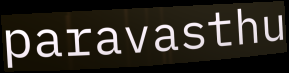
paravasthu